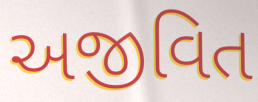
અજીવિત